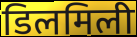
डिलमिली